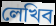
লেখিব